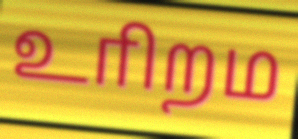
உரிறம